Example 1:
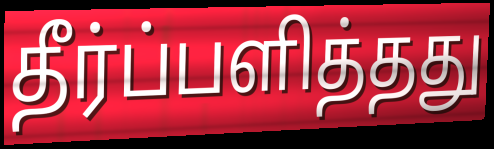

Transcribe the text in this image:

தீர்ப்பளித்தது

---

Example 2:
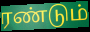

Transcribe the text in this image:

ரண்டும்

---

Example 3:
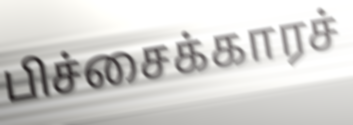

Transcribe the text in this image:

பிச்சைக்காரச்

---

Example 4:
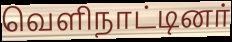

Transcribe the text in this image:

வெளிநாட்டினர்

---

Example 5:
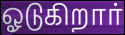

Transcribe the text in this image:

ஓடுகிறார்